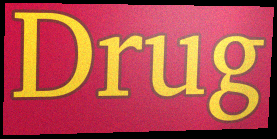
Drug